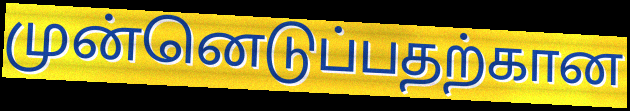
முன்னெடுப்பதற்கான